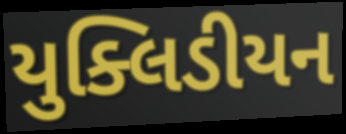
યુક્લિડીયન